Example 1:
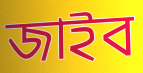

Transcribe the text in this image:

জাইব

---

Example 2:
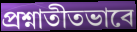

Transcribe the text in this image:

প্রশ্নাতীতভাবে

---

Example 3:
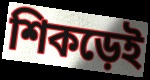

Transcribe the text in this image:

শিকড়েই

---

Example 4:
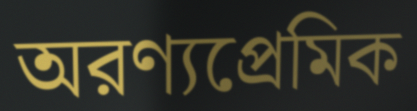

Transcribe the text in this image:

অরণ্যপ্রেমিক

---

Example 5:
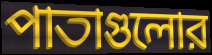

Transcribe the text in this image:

পাতাগুলোর